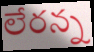
లేరన్న